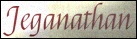
Jeganathan